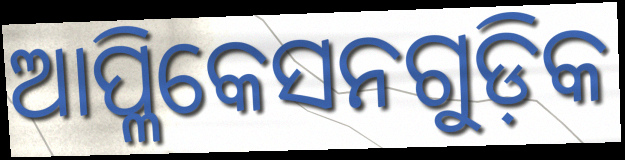
ଆପ୍ଳିକେସନଗୁଡ଼ିକ